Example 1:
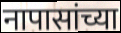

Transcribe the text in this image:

नापासांच्या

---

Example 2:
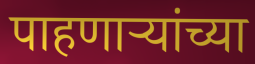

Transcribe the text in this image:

पाहणार्‍यांच्या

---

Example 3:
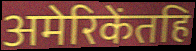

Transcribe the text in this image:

अमेरिकेंतहि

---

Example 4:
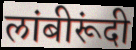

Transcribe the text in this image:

लांबीरूंदी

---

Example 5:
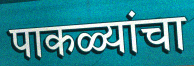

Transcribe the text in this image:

पाकळ्यांचा